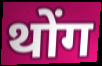
थोंग